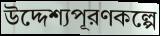
উদ্দেশ্যপূরণকল্পে